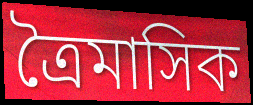
ত্রৈমাসিক